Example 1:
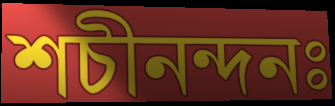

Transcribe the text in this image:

শচীনন্দনঃ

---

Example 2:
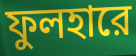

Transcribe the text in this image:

ফুলহারে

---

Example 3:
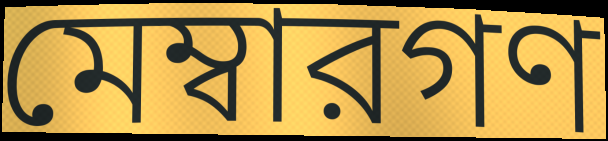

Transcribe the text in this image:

মেম্বারগণ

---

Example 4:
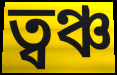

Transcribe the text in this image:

ত্বঞ্চ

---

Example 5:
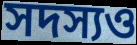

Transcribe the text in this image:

সদস্যও